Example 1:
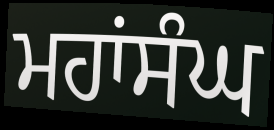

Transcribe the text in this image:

ਮਹਾਂਸੰਘ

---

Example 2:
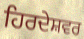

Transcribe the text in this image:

ਹਿਰਦੇਸ਼ਵਰ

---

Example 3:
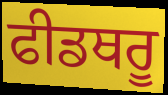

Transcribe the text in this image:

ਫੀਡਥਰੂ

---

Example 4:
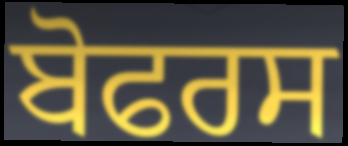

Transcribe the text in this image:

ਬੋਫਰਸ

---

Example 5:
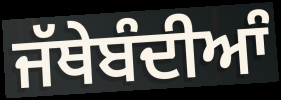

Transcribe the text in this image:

ਜੱਥੇਬੰਦੀਆੰ